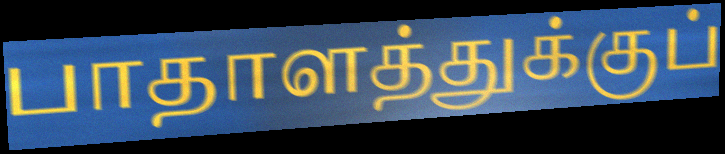
பாதாளத்துக்குப்